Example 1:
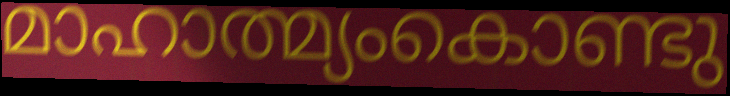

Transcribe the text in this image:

മാഹാത്മ്യംകൊണ്ടു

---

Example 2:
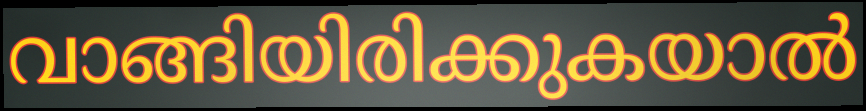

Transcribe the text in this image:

വാങ്ങിയിരിക്കുകയാൽ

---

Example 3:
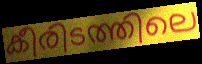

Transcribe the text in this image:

കീരിടത്തിലെ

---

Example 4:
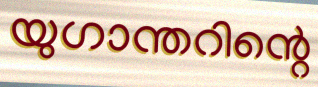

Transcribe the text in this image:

യുഗാന്തറിന്റെ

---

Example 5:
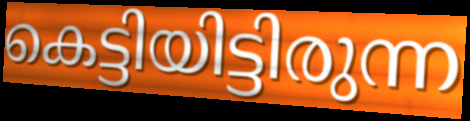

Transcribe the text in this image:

കെട്ടിയിട്ടിരുന്ന